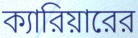
ক্যারিয়ারের